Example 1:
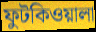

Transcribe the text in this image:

ফুটকিওয়ালা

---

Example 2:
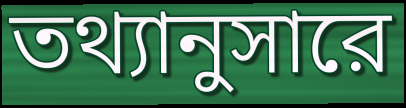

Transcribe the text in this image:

তথ্যানুসারে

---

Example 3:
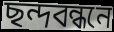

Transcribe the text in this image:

ছন্দবন্ধনে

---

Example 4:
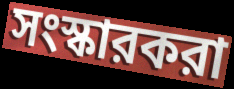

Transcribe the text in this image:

সংস্কারকরা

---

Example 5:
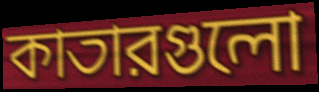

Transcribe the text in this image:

কাতারগুলো